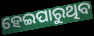
ହେଇପାରୁଥିବ